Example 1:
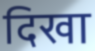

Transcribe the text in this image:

दिखा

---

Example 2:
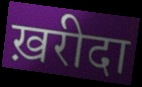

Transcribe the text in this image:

ख़रीदा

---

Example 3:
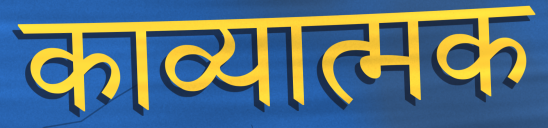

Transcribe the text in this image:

काव्यात्मक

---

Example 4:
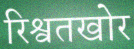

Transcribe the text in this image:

रिश्वतखोर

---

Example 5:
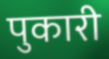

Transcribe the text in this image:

पुकारी